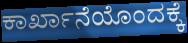
ಕಾರ್ಖಾನೆಯೊಂದಕ್ಕೆ